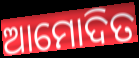
ଆମୋଦିତ